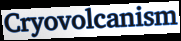
Cryovolcanism